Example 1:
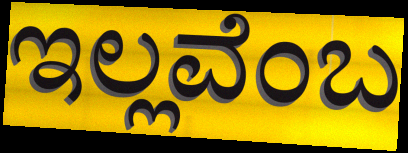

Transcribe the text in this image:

ಇಲ್ಲವೆಂಬ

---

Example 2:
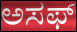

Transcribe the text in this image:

ಅಸಫ್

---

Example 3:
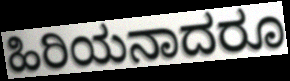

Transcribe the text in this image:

ಹಿರಿಯನಾದರೂ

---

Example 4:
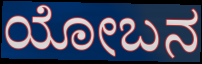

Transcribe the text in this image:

ಯೋಬನ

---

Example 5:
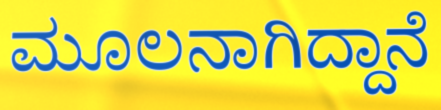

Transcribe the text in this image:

ಮೂಲನಾಗಿದ್ದಾನೆ